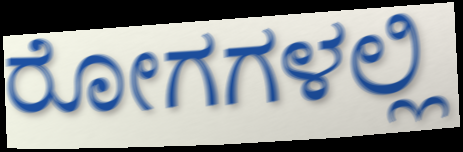
ರೋಗಗಳಲ್ಲಿ